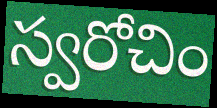
స్వరోచిం